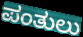
ಪಂತುಲು